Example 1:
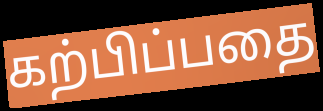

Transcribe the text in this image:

கற்பிப்பதை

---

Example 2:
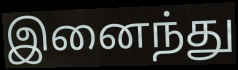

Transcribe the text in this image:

இனைந்து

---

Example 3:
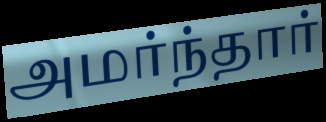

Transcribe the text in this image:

அமர்ந்தார்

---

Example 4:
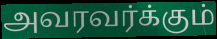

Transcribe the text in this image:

அவரவர்க்கும்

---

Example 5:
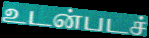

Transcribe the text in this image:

உடன்படச்